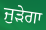
ਜੁੜੇਗਾ